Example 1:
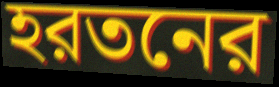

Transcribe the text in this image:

হরতনের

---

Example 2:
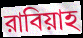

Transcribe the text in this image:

রাবিয়াহ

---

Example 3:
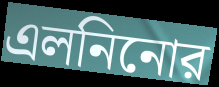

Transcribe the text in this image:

এলনিনোর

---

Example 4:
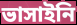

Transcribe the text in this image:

ভাসাইনি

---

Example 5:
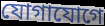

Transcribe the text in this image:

যোগাযোগে